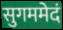
सुगममेदं